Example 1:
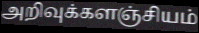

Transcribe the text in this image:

அறிவுக்களஞ்சியம்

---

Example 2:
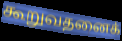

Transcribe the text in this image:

கூறுவதனைக்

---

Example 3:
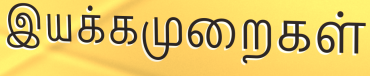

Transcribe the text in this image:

இயக்கமுறைகள்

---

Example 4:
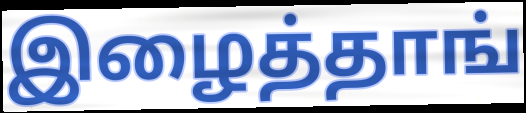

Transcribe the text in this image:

இழைத்தாங்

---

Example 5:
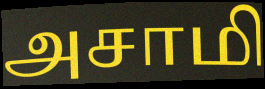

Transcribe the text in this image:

அசாமி